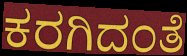
ಕರಗಿದಂತೆ